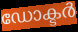
ഡോക്ടർ